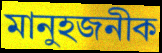
মানুহজনীক